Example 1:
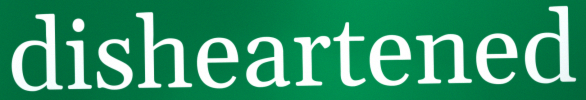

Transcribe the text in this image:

disheartened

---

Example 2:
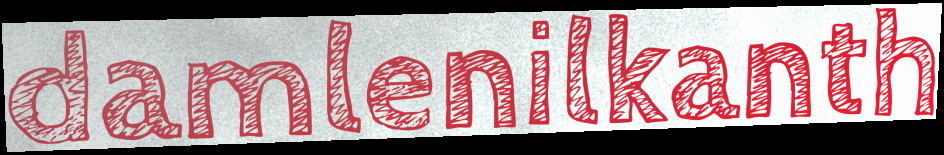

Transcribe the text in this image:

damlenilkanth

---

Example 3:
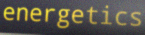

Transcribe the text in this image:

energetics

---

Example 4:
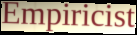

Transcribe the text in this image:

Empiricist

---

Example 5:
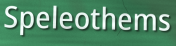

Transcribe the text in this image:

Speleothems